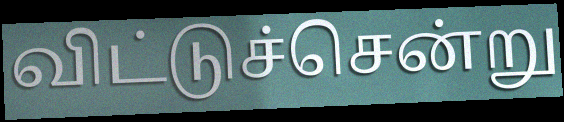
விட்டுச்சென்று